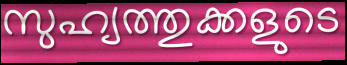
സുഹ്യത്തുക്കളുടെ